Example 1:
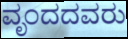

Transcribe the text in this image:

ವೃಂದದವರು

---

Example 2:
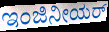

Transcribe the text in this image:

ಇಂಜಿನೀಯರ್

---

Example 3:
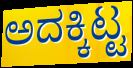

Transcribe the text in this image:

ಅದಕ್ಕಿಟ್ಟ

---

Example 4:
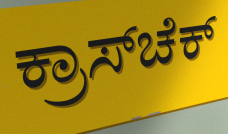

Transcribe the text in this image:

ಕ್ರಾಸ್‌ಚೆಕ್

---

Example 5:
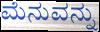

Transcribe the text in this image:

ಮೆನುವನ್ನು